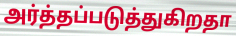
அர்த்தப்படுத்துகிறதா